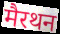
मैरथन